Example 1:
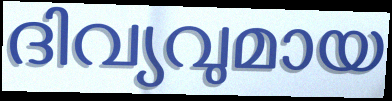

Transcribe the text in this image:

ദിവ്യവുമായ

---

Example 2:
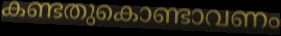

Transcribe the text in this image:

കണ്ടതുകൊണ്ടാവണം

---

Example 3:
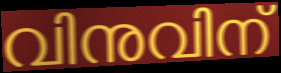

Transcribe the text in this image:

വിനുവിന്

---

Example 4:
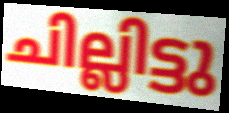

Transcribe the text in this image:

ചില്ലിട്ടു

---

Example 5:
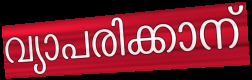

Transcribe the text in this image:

വ്യാപരിക്കാന്